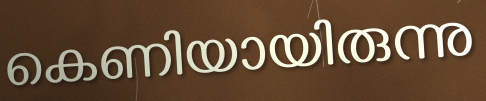
കെണിയായിരുന്നു